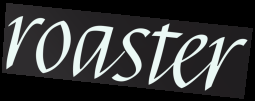
roaster